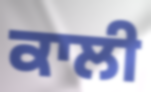
ਕਾਲੀ